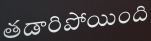
తడారిపోయింది